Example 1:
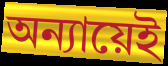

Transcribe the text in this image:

অন্যায়েই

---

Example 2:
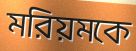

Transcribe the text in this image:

মরিয়মকে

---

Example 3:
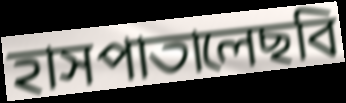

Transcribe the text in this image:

হাসপাতালেছবি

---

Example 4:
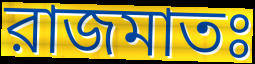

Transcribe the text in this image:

রাজমাতঃ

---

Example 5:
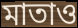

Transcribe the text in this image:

মাতাও